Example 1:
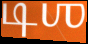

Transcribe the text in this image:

டிஶ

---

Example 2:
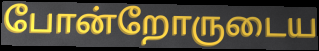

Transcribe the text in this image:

போன்றோருடைய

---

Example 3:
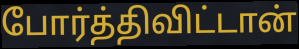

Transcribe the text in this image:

போர்த்திவிட்டான்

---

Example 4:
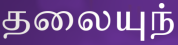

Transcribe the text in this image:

தலையுந்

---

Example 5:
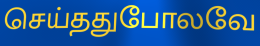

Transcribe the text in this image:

செய்ததுபோலவே